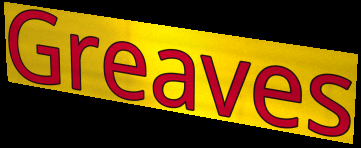
Greaves